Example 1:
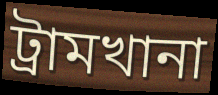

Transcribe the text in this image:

ট্রামখানা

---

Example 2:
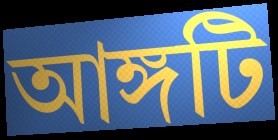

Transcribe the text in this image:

আঙ্গটি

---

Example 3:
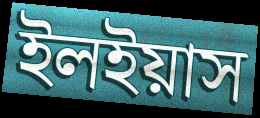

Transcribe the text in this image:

ইলইয়াস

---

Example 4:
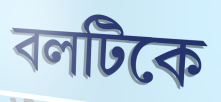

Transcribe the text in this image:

বলটিকে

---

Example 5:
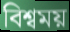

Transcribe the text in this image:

বিশ্বময়